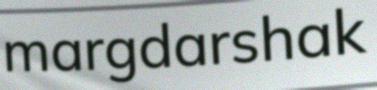
margdarshak